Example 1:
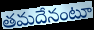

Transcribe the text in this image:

తమదేనంటూ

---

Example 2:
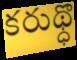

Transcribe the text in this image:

కరుథ్ధొ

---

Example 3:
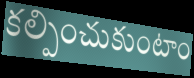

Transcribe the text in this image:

కల్పించుకుంటాం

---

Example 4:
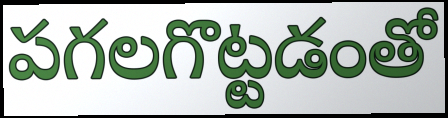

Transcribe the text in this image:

పగలగొట్టడంతో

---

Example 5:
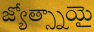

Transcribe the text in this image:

జ్యోత్స్నాయై